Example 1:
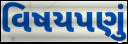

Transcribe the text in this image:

વિષયપણું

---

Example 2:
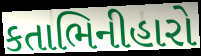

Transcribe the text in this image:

કતાભિનીહારો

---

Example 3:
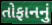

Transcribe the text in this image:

તોફાનનું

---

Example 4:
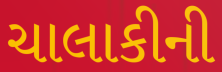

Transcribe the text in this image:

ચાલાકીની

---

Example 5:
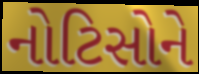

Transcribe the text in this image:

નોટિસોને